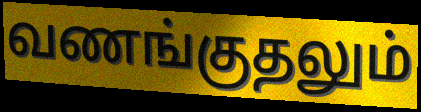
வணங்குதலும்